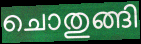
ചൊതുങ്ങി